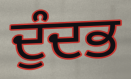
ਦੁੰਦਭ